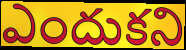
ఎందుకని